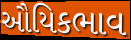
ઔયિકભાવ